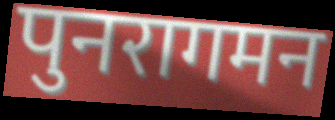
पुनरागमन